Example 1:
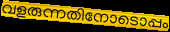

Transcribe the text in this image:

വളരുന്നതിനോടൊപ്പം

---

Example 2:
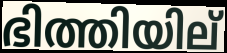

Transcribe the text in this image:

ഭിത്തിയില്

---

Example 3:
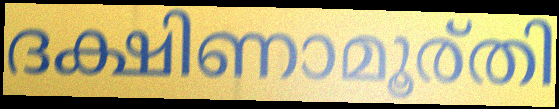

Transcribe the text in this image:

ദക്ഷിണാമൂര്തി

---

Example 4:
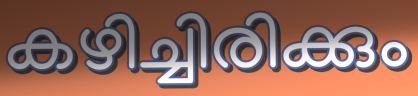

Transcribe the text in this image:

കഴിച്ചിരിക്കും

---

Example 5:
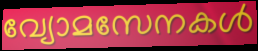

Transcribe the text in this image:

വ്യോമസേനകൾ